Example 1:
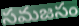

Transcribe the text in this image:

సమజసం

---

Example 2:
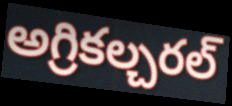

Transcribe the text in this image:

అగ్రికల్చరల్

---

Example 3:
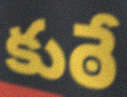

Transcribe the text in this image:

కుఠే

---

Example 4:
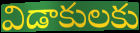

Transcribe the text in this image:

విడాకులకు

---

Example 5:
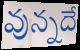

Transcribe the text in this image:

వున్నదే